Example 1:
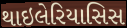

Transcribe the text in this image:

થાઇલેરિયાસિસ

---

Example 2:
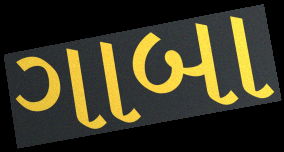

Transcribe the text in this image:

ગાબા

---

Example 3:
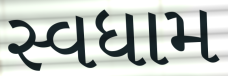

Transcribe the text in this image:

સ્વધામ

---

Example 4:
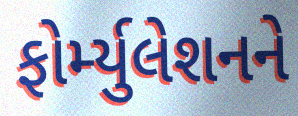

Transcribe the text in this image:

ફોર્મ્યુલેશનને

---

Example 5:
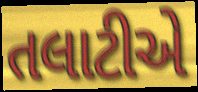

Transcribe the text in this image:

તલાટીએ